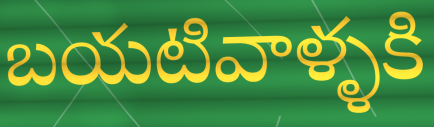
బయటివాళ్ళకి